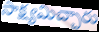
సాక్ష్యమిచ్చారు